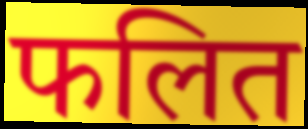
फलित